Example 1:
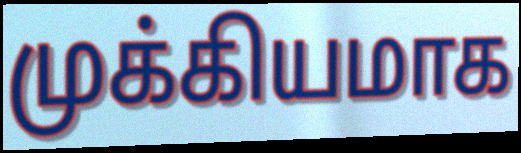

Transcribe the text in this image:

முக்கியமாக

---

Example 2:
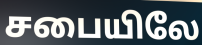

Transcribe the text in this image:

சபையிலே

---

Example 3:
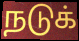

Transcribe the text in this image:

நடுக்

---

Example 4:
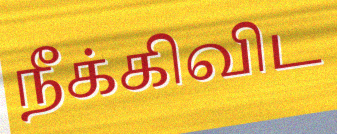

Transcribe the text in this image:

நீக்கிவிட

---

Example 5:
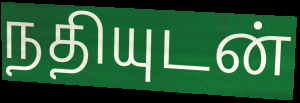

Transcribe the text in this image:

நதியுடன்